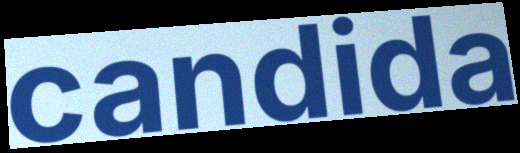
candida